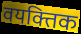
वयक्तिक